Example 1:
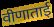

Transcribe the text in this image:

वीणाताई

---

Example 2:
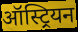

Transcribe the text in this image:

ऑस्ट्रियन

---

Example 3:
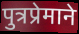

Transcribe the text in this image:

पुत्रप्रेमाने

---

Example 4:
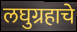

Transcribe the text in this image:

लघुग्रहाचे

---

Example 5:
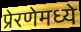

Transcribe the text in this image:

प्रेरणेमध्ये